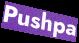
Pushpa